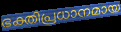
ഭക്തിപ്രധാനമായ